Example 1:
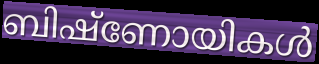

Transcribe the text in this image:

ബിഷ്ണോയികൾ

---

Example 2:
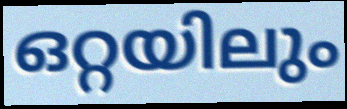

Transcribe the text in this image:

ഒറ്റയിലും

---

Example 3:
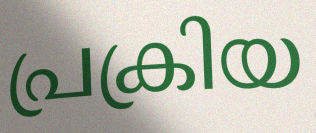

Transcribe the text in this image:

പ്രക്രിയ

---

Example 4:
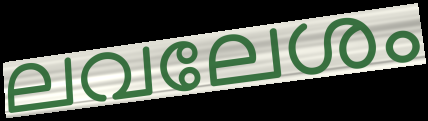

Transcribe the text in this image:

ലവലേശം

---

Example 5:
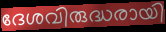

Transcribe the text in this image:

ദേശവിരുദ്ധരായി